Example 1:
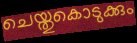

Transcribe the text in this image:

ചെയ്തുകൊടുക്കും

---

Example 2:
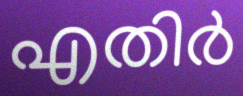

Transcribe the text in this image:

എതിർ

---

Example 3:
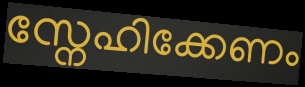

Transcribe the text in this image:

സ്നേഹിക്കേണം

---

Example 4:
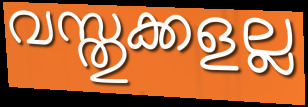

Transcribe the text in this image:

വസ്തുക്കളല്ല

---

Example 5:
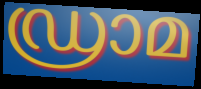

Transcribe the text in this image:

ഡ്രാമ